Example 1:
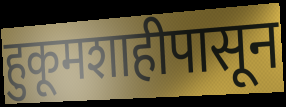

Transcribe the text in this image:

हुकूमशाहीपासून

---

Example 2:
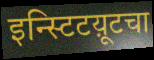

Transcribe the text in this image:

इन्स्टिटय़ूटचा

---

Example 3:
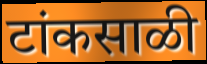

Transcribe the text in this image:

टांकसाळी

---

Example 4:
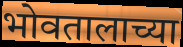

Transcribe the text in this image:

भोवतालाच्या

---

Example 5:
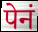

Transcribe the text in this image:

पेनं